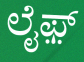
ಲೈಫ಼್